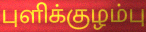
புளிக்குழம்பு